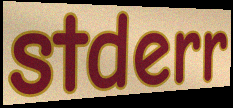
stderr